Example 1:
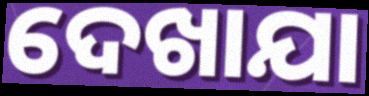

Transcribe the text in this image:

ଦେଖାଯା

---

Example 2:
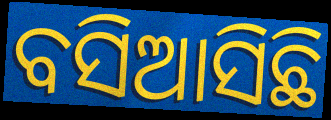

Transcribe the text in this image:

ବସିଆସିଛି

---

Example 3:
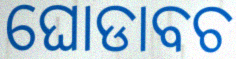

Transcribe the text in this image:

ଘୋଡାବଚ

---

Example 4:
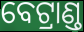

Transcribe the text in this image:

ବେଟ୍ରାଣ୍ଡ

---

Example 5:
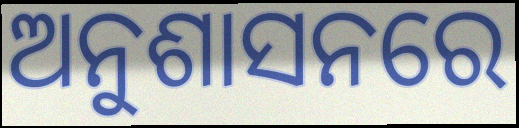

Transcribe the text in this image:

ଅନୁଶାସନରେ